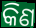
କିଣ